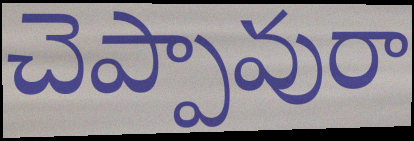
చెప్పావురా